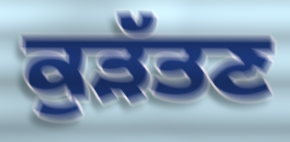
ਕੁੜੱਤਣ